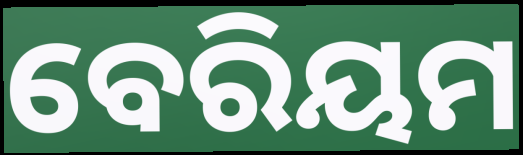
ବେରିୟମ